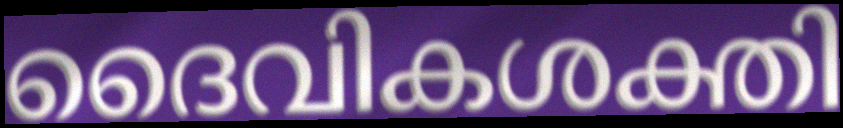
ദൈവികശക്തി